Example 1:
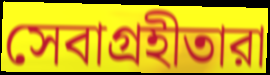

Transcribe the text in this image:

সেবাগ্রহীতারা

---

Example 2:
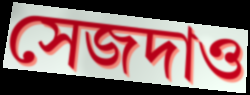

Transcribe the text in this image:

সেজদাও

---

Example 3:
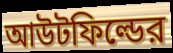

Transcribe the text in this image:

আউটফিল্ডের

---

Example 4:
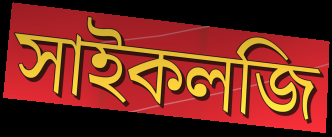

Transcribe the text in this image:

সাইকলজি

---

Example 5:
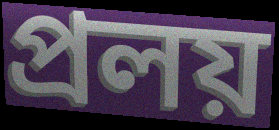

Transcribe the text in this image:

প্রলয়